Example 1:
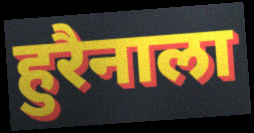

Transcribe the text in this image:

हुरैनाला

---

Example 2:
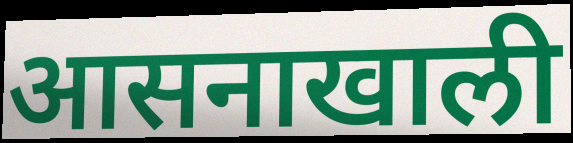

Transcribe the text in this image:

आसनाखाली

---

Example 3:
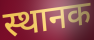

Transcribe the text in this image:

स्थानक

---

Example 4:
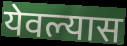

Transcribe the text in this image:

येवल्यास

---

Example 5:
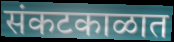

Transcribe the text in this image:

संकटकाळात